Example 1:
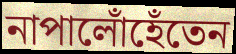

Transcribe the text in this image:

নাপালোঁহেঁতেন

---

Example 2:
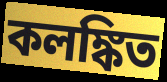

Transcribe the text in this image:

কলঙ্কিত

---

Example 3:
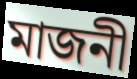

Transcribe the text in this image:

মাজনী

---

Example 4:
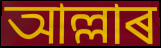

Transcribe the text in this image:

আল্লাৰ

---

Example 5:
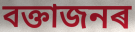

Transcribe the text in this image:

বক্তাজনৰ